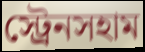
স্ট্রেনসহাম